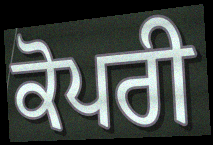
ਕੋਪਰੀ